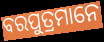
ବରପୁତ୍ରମାନେ